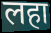
लहा